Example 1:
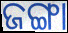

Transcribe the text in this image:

ଜଙ୍ଗା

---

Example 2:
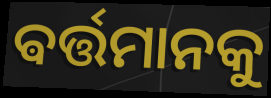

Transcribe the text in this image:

ଵର୍ତ୍ତମାନକୁ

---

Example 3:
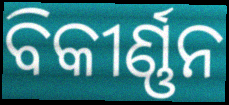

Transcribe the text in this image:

ବିକୀର୍ଣ୍ଣନ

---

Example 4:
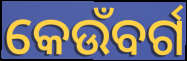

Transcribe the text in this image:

କେଉଁବର୍ଗ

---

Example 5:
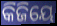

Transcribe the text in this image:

କିଜିୟେ